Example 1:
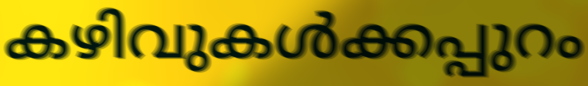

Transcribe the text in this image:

കഴിവുകൾക്കപ്പുറം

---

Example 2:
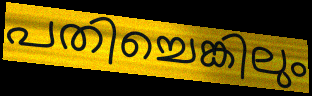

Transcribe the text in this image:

പതിച്ചെങ്കിലും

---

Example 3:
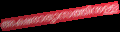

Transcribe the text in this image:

അക്ഷരാഭ്യാസത്തിനുള്ള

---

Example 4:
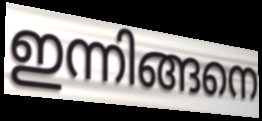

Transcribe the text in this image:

ഇന്നിങ്ങനെ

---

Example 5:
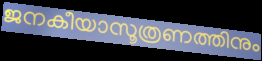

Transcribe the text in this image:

ജനകീയാസൂത്രണത്തിനും